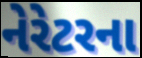
નેરેટરના